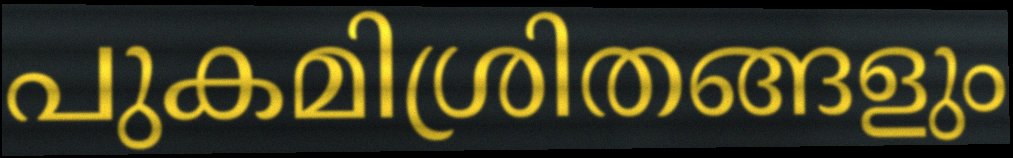
പുകമിശ്രിതങ്ങളും